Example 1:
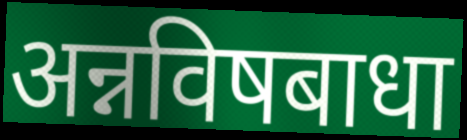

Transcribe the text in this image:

अन्नविषबाधा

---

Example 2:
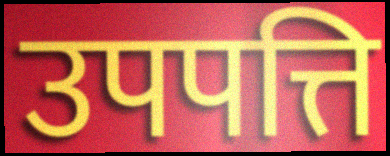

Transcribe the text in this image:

उपपत्ति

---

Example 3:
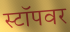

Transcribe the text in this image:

स्टॉपवर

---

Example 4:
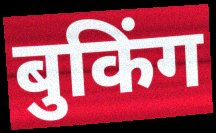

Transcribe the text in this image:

बुकिंग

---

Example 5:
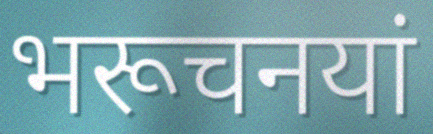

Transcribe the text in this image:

भरूचनयां